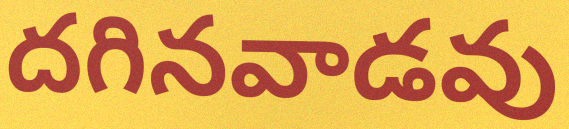
దగినవాడవు